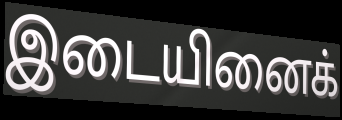
இடையினைக்